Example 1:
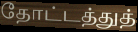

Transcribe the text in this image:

தோட்டத்துத்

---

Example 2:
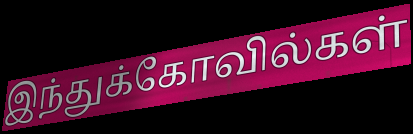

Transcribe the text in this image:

இந்துக்கோவில்கள்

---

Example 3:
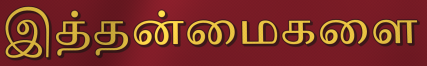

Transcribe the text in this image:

இத்தன்மைகளை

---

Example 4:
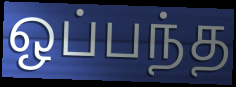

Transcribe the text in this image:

ஒப்பந்த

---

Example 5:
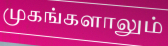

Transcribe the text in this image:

முகங்களாலும்